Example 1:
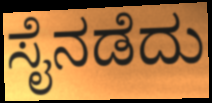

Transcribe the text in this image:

ಸೈನಡೆದು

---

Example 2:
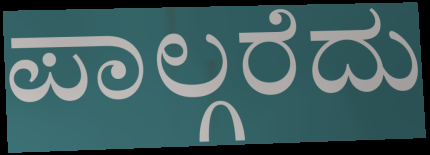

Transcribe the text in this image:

ಪಾಲ್ಗರೆದು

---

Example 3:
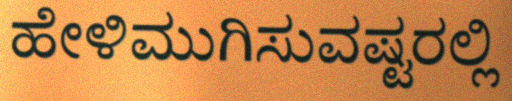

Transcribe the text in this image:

ಹೇಳಿಮುಗಿಸುವಷ್ಟರಲ್ಲಿ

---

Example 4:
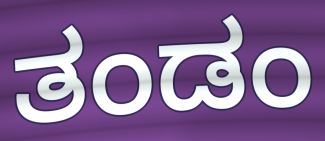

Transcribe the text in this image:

ತಂಡಂ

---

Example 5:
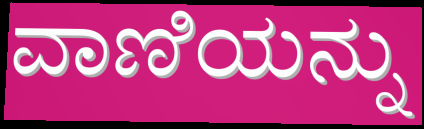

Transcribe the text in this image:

ವಾಣಿಯನ್ನು